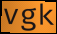
vgk